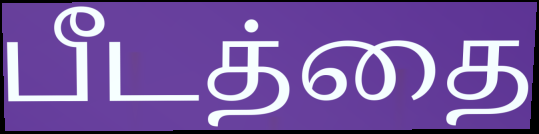
பீடத்தை